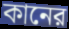
কানের